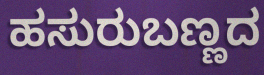
ಹಸುರುಬಣ್ಣದ